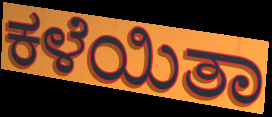
ಕಳೆಯಿತಾ